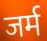
जर्म